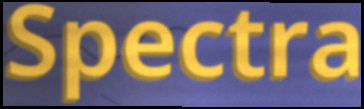
Spectra